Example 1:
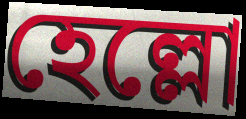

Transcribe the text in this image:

হেল্লো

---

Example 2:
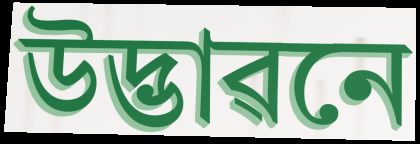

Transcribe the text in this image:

উদ্ভাৱনে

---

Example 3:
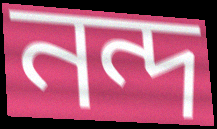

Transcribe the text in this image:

নন্দ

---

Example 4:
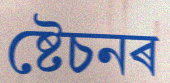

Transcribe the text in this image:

ষ্টেচনৰ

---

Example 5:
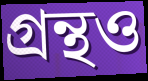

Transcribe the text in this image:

গ্ৰন্থও